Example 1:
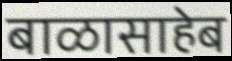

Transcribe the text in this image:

बाळासाहेब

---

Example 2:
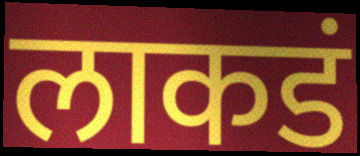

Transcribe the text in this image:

लाकडं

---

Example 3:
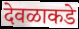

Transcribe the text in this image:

देवळाकडे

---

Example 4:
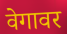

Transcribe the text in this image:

वेगावर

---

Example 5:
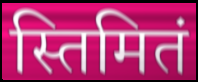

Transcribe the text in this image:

स्तिमितं